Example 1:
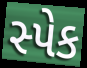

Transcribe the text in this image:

સ્પેક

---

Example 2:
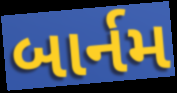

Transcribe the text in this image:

બાર્નમ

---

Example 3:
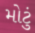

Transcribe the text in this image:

મોટું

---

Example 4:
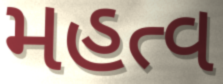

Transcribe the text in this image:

મહત્વ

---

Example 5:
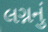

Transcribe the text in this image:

લગ્નનું